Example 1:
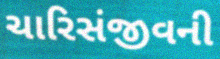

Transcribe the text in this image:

ચારિસંજીવની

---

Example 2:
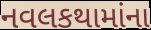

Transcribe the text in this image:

નવલકથામાંના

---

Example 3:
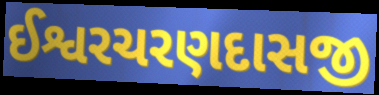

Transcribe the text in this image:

ઈશ્વરચરણદાસજી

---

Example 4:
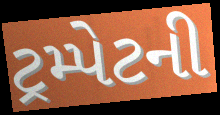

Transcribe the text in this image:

ટ્રમ્પેટની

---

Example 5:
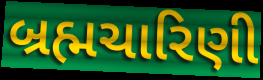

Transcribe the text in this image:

બ્રહ્મચારિણી